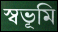
স্বভূমি